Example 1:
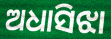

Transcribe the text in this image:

ଅଧାସିଝା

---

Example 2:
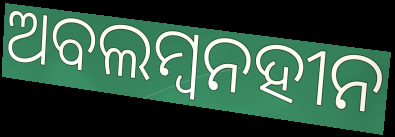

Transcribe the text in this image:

ଅବଲମ୍ବନହୀନ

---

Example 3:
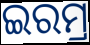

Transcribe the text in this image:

ଇରମ୍ର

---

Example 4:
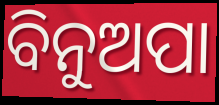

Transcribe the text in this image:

ବିନୁଅପା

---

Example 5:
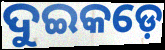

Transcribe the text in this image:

ଦୁଇକଡ଼େ